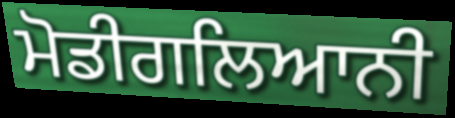
ਮੋਡੀਗਲਿਆਨੀ